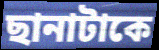
ছানাটাকে